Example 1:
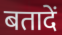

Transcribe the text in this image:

बतादें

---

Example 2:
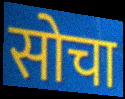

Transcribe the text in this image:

सोचा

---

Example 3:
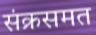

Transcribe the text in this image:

संक्रसमत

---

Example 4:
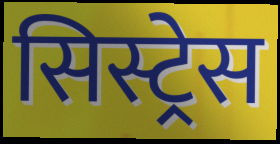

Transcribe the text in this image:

सिस्ट्रेस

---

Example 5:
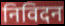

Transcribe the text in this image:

निविदन